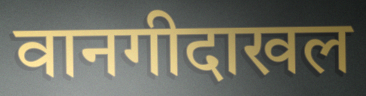
वानगीदाखल